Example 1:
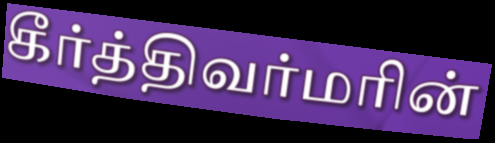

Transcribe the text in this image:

கீர்த்திவர்மரின்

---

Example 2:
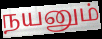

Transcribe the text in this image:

நயனும்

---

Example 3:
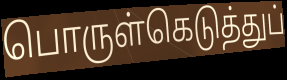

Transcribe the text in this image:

பொருள்கெடுத்துப்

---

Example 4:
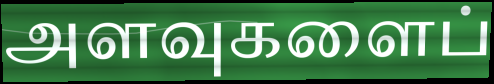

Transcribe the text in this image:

அளவுகளைப்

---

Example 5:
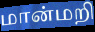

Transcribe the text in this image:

மான்மறி